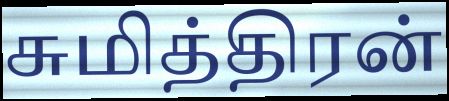
சுமித்திரன்